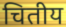
चितीय